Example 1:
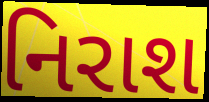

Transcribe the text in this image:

નિરાશ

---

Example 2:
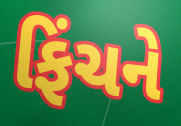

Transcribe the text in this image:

ફિંચને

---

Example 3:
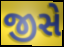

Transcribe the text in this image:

જીસે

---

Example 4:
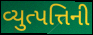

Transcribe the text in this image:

વ્યુત્પત્તિની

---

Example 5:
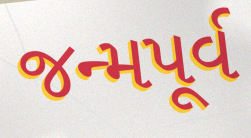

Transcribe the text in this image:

જન્મપૂર્વ